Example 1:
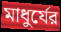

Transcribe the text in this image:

মাধুর্যের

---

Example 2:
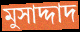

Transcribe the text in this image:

মুসাদ্দাদ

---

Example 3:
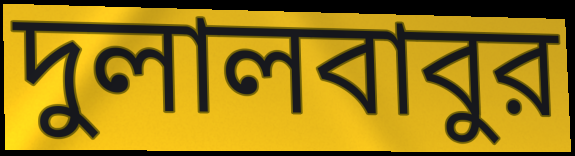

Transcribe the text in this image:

দুলালবাবুর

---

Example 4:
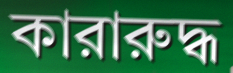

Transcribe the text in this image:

কারারুদ্ধ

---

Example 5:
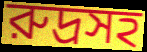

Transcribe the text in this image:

রুদ্রসহ